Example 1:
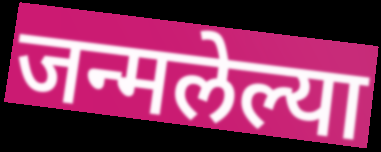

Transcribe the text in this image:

जन्मलेल्या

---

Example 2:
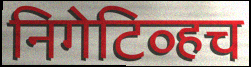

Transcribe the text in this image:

निगेटिव्हच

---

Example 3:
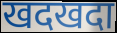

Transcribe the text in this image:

खदखदा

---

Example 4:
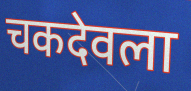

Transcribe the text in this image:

चकदेवला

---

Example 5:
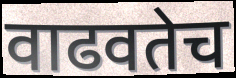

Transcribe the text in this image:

वाढवतेच